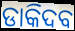
ଡାକିଦବ